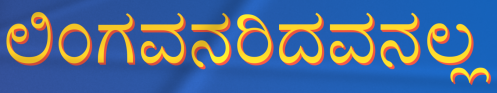
ಲಿಂಗವನರಿದವನಲ್ಲ